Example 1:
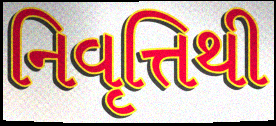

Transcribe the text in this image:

નિવૃત્તિથી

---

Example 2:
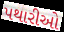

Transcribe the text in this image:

પથારીઓ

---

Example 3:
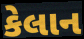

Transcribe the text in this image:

કેલાન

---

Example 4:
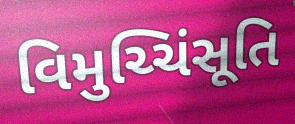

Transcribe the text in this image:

વિમુચ્ચિંસૂતિ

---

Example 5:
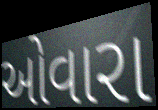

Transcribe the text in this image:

ઓવારા